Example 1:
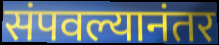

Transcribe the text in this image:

संपवल्यानंतर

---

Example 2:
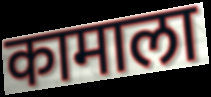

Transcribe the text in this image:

कामाला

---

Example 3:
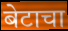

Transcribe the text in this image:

बेटाचा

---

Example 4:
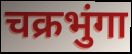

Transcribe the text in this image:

चक्रभुंगा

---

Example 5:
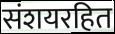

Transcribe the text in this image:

संशयरहित